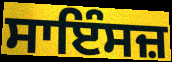
ਸਾਇੰਸਜ਼